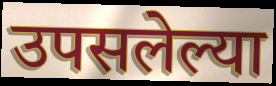
उपसलेल्या